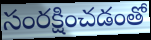
సంరక్షించడంతో